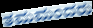
ತಮಮಂದರು